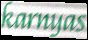
karnyas